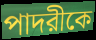
পাদরীকে